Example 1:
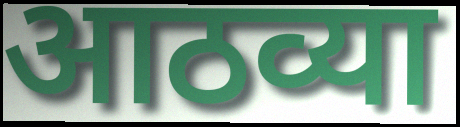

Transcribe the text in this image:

आठव्या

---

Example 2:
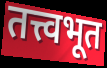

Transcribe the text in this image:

तत्त्वभूत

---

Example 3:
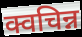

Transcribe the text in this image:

क्वचिन्न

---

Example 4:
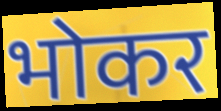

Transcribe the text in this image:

भोकर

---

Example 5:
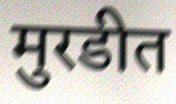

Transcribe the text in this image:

मुरडीत